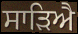
ਸਾੜਿਐ